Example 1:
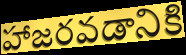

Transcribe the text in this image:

హాజరవడానికి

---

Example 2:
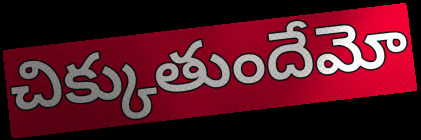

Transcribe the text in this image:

చిక్కుతుందేమో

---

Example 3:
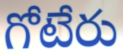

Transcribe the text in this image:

గోటేరు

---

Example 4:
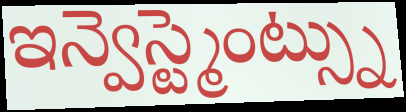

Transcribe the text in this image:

ఇన్వెస్ట్మెంట్స్ను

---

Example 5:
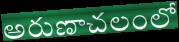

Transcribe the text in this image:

అరుణాచలంలో